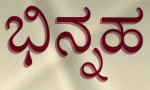
ಭಿನ್ನಹ